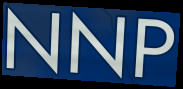
NNP